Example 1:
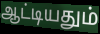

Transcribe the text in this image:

ஆட்டியதும்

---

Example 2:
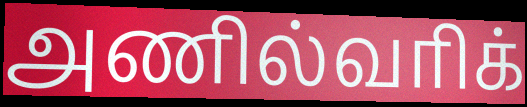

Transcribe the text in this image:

அணில்வரிக்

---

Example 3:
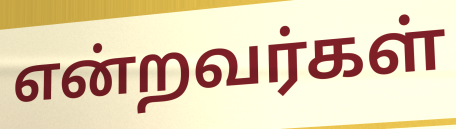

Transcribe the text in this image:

என்றவர்கள்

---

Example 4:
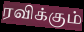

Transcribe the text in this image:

ரவிக்கும்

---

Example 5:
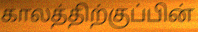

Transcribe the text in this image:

காலத்திற்குப்பின்